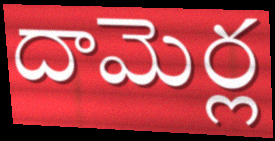
దామెర్ల